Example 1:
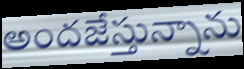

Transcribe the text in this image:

అందజేస్తున్నాను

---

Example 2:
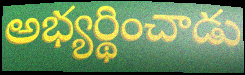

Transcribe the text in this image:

అభ్యర్థించాడు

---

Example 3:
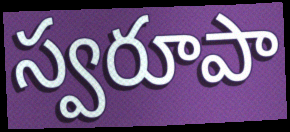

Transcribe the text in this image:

స్వరూపా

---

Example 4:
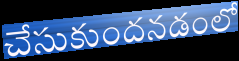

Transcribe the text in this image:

చేసుకుందనడంలో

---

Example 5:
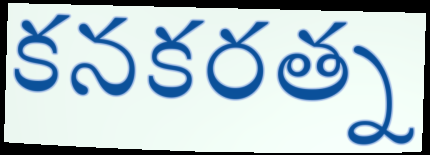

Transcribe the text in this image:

కనకరత్న